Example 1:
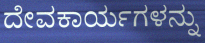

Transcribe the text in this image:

ದೇವಕಾರ್ಯಗಳನ್ನು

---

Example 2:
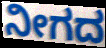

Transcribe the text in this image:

ನೀಗದ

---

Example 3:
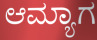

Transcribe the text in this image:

ಆಮ್ಯಾಗ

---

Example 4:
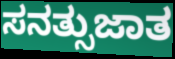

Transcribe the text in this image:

ಸನತ್ಸುಜಾತ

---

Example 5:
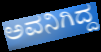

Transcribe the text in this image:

ಅವನಿಗಿದ್ದ